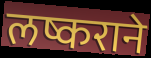
लष्कराने